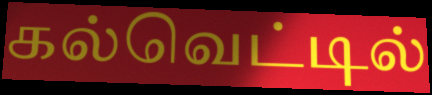
கல்வெட்டில்